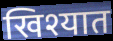
खिश्यात